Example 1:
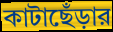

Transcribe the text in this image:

কাটাছেঁড়ার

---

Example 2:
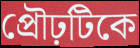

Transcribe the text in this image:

প্রৌঢ়টিকে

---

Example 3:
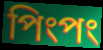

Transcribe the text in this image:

পিংপং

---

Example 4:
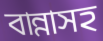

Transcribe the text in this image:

বান্নাসহ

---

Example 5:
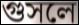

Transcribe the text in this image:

গুসলে